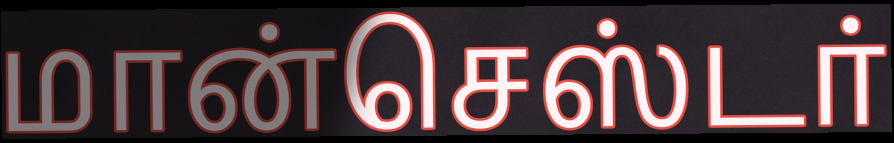
மான்செஸ்டர்